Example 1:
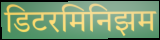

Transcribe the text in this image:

डिटरमिनिझम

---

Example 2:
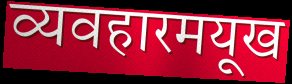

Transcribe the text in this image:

व्यवहारमयूख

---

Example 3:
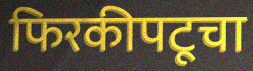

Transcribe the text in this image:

फिरकीपटूचा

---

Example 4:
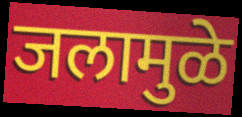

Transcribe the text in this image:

जलामुळे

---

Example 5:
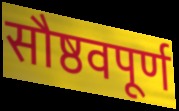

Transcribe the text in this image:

सौष्ठवपूर्ण